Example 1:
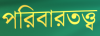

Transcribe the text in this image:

পরিবারতত্ত্ব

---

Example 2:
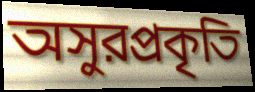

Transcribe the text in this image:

অসুরপ্রকৃতি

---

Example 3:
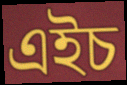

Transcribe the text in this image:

এইচ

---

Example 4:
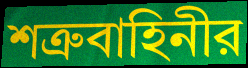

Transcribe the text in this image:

শত্রুবাহিনীর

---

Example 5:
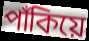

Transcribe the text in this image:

পাঁকিয়ে